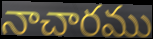
నాచారము